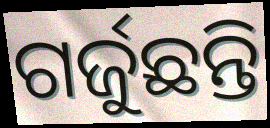
ଗର୍ଜୁଛନ୍ତି